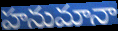
హనుమానా